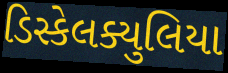
ડિસ્કેલક્યુલિયા